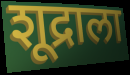
शूद्राला